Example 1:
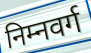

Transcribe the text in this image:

निम्नवर्ग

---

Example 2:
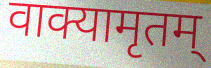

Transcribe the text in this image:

वाक्यामृतम्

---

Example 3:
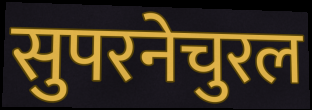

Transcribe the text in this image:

सुपरनेचुरल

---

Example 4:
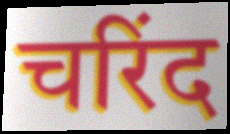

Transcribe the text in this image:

चरिंद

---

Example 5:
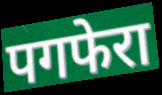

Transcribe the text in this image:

पगफेरा